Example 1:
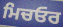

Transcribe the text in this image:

ਮਿਚਓਰ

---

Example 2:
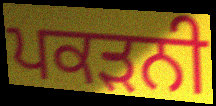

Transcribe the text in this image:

ਪਕੜਨੀ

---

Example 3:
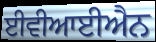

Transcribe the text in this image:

ਈਵੀਆਈਐਨ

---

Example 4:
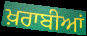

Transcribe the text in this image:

ਖ਼ਰਾਬੀਆਂ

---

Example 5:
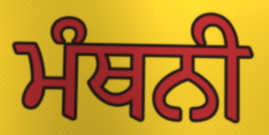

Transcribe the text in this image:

ਮੰਥਨੀ